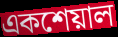
একশেয়াল